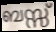
ബസ്സ്